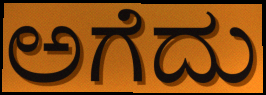
ಅಗೆದು